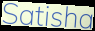
Satisha